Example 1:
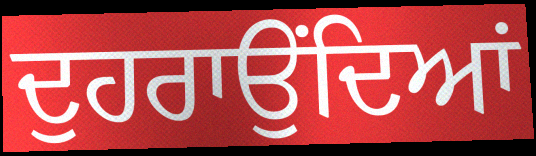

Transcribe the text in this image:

ਦੁਹਰਾਉਂਦਿਆਂ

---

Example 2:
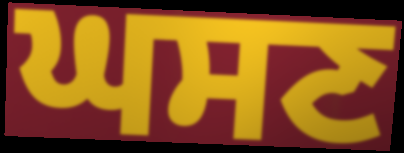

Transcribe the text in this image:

ਘਸਣ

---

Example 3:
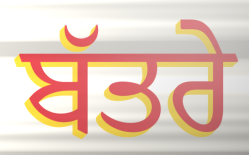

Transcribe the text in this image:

ਬੱਤਰੇ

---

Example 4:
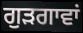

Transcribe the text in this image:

ਗੁੜਗਾਵਾਂ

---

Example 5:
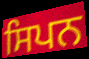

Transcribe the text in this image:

ਸਿਪਨ